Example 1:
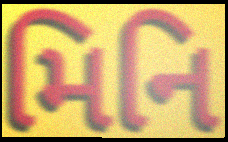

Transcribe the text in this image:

મિનિ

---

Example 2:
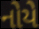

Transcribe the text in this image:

નોયે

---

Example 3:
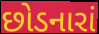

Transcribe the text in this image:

છોડનારાં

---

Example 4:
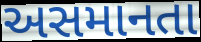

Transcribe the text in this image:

અસમાનતા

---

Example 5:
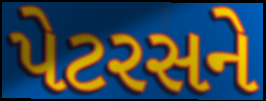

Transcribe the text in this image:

પેટરસને